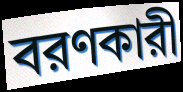
বরণকারী